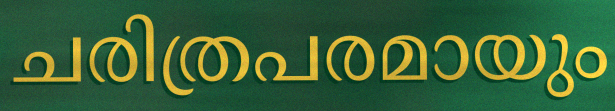
ചരിത്രപരമായും